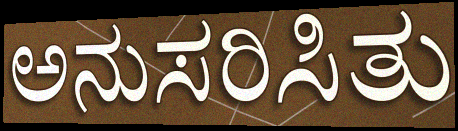
ಅನುಸರಿಸಿತು